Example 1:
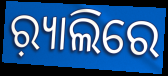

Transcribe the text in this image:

ର଼୍ୟାଲିରେ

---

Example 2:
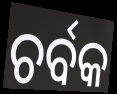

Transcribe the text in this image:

ଚର୍ବକ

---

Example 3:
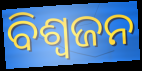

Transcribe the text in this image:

ବିଶ୍ଵଜନ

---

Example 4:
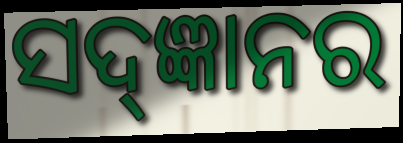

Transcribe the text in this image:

ସଦ୍‌ଜ୍ଞାନର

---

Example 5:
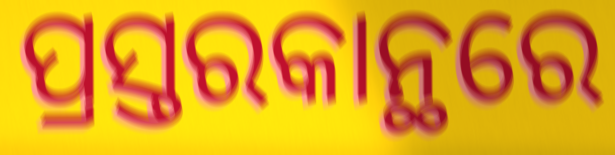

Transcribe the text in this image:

ପ୍ରସ୍ତରକାନ୍ଥରେ